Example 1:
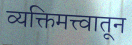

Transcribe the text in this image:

व्यक्तिमत्त्वातून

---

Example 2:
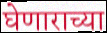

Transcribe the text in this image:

घेणाराच्या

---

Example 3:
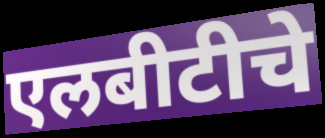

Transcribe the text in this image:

एलबीटीचे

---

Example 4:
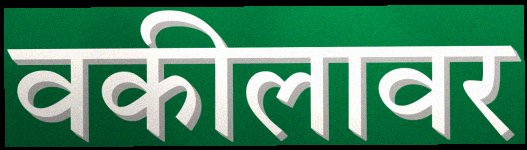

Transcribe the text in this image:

वकीलावर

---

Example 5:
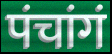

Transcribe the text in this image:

पंचांगं